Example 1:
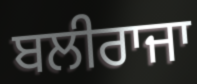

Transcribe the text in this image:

ਬਲੀਰਾਜਾ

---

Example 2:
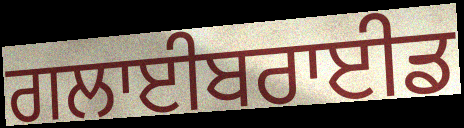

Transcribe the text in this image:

ਗਲਾਈਬਰਾਈਡ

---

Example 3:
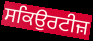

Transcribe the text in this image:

ਸਕਿਉਰਟੀਜ਼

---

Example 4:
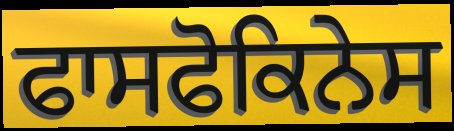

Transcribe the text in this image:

ਫਾਸਫੋਕਿਨੇਸ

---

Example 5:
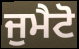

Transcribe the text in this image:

ਜੁਮੈਟੋ